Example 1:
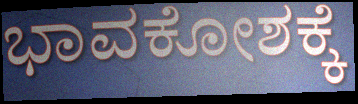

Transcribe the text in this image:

ಭಾವಕೋಶಕ್ಕೆ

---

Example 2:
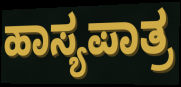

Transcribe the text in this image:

ಹಾಸ್ಯಪಾತ್ರ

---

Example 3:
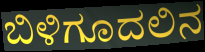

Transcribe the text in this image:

ಬಿಳಿಗೂದಲಿನ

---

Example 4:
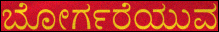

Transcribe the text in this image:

ಬೋರ್ಗರೆಯುವ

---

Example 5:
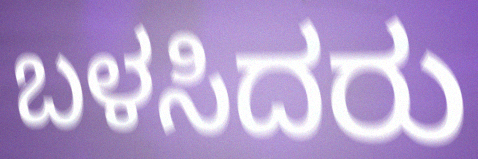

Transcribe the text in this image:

ಬಳಸಿದರು